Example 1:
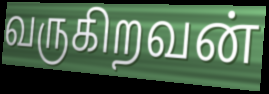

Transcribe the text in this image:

வருகிறவன்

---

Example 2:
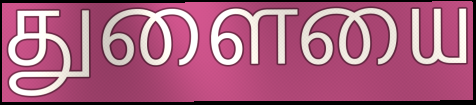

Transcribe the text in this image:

துளையை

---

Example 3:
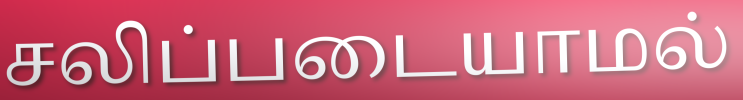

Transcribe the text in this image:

சலிப்படையாமல்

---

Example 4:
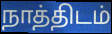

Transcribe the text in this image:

நாத்திடம்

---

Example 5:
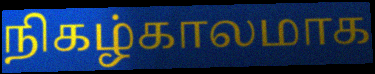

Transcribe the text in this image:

நிகழ்காலமாக